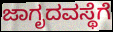
ಜಾಗೃದವಸ್ಥೆಗೆ